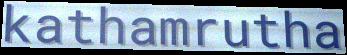
kathamrutha